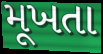
મૂખતા